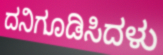
ದನಿಗೂಡಿಸಿದಳು